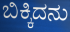
ಬಿಕ್ಕಿದನು